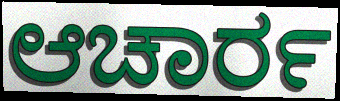
ಆಚಾರ್ರ